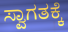
ಸ್ವಾಗತಕ್ಕೆ